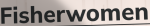
Fisherwomen